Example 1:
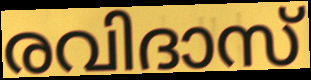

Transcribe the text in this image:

രവിദാസ്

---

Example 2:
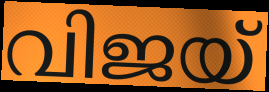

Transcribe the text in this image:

വിജയ്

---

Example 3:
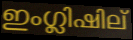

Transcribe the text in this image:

ഇംഗ്ലിഷില്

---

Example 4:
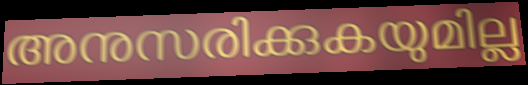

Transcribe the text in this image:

അനുസരിക്കുകയുമില്ല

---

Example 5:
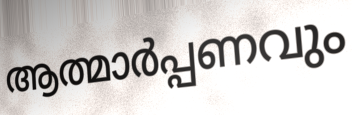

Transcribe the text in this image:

ആത്മാർപ്പണവും